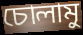
চোলামু